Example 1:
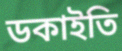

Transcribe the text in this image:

ডকাইতি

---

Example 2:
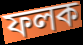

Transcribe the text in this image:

ফলক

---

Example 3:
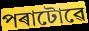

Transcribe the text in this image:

পৰাটোৱে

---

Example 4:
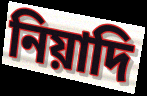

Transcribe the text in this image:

নিয়াদি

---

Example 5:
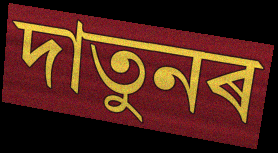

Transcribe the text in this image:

দাতুনৰ